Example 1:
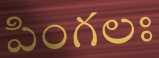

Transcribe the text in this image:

పింగలః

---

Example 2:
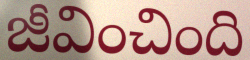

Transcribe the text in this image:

జీవించింది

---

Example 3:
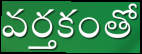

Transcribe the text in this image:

వర్తకంతో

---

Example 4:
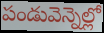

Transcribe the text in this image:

పండువెన్నెల్లో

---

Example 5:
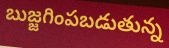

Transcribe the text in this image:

బుజ్జగింపబడుతున్న